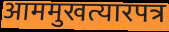
आममुखत्यारपत्र